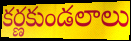
కర్ణకుండలాలు